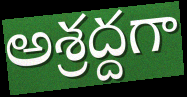
అశ్రద్దగా